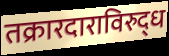
तक्रारदाराविरुद्ध